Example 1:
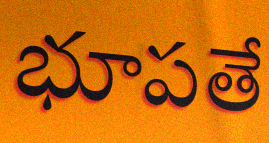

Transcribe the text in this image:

భూపతే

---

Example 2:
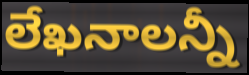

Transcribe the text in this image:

లేఖనాలన్నీ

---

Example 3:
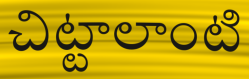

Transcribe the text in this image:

చిట్టాలాంటి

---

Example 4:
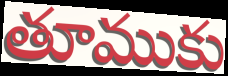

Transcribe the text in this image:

తూముకు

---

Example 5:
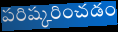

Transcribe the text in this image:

పరిష్కరించడం